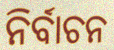
ନିର୍ବାଚନ